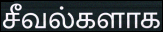
சீவல்களாக